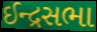
ઈન્દ્રસભા